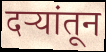
दऱ्यांतून